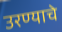
उरण्याचे